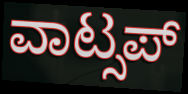
ವಾಟ್ಸಪ್